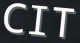
CIT